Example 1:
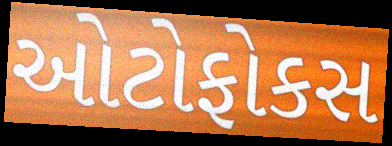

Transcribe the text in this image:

ઓટોફોકસ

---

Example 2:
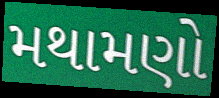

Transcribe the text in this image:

મથામણો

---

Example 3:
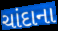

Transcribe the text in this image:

ચાંદાના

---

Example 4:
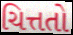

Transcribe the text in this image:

ચિત્તતો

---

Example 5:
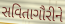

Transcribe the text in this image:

સવિતાગૌરીને